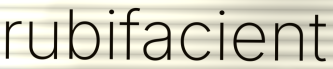
rubifacient